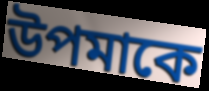
উপমাকে